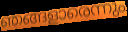
ഞങ്ങളാരെന്നും